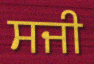
ਸਜੀ